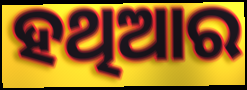
ହଥିଆର